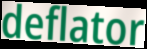
deflator